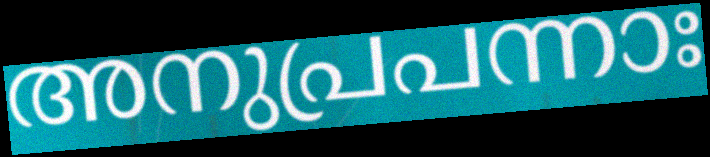
അനുപ്രപന്നാഃ